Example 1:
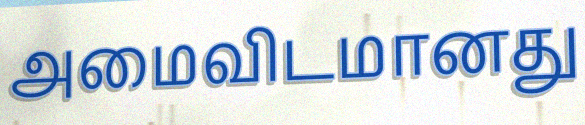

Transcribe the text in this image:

அமைவிடமானது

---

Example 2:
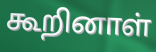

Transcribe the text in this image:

கூறினாள்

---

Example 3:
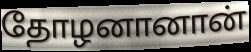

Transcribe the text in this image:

தோழனானான்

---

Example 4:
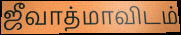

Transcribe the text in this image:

ஜீவாத்மாவிடம்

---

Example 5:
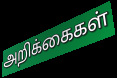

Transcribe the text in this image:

அறிக்கைகள்